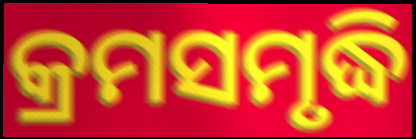
କ୍ରମସମୃଦ୍ଧି